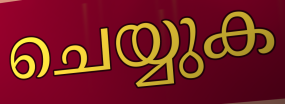
ചെയ്യുക